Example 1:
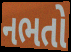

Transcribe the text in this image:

નભતો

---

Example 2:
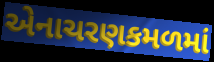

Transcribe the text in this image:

એનાચરણકમળમાં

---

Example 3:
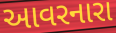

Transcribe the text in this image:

આવરનારા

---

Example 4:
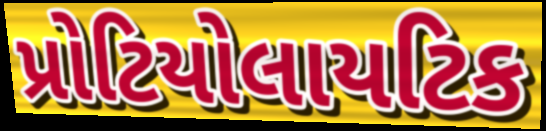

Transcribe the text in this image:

પ્રોટિયોલાયટિક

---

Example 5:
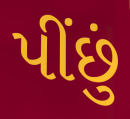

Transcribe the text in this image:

પીંછું